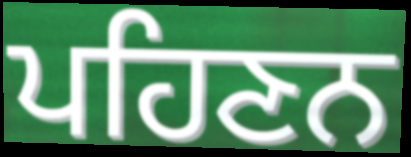
ਪਹਿਣਨ